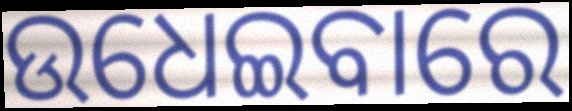
ଉଧେଇବାରେ